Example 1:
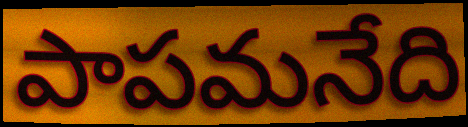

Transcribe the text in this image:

పాపమనేది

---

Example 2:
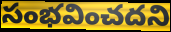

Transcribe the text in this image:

సంభవించదని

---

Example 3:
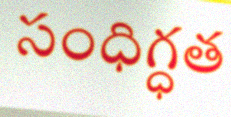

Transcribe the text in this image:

సంధిగ్ధత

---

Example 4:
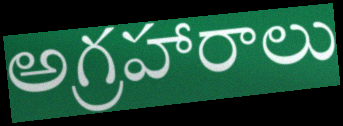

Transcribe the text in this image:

అగ్రహారాలు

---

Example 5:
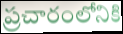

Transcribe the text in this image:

ప్రచారంలోనికి